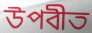
উপবীত